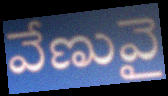
వేణువై